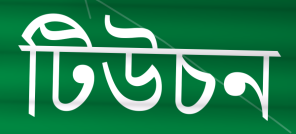
টিউচন